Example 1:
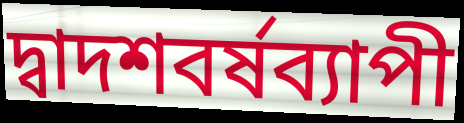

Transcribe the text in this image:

দ্বাদশবর্ষব্যাপী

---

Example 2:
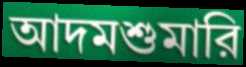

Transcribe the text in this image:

আদমশুমারি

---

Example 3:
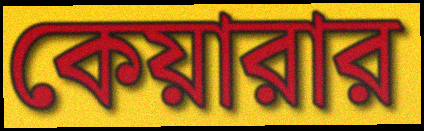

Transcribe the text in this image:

কেয়ারার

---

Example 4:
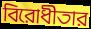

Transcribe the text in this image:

বিরোধীতার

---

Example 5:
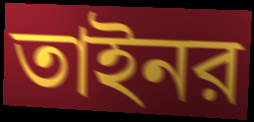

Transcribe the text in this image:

তাইনর